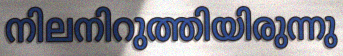
നിലനിറുത്തിയിരുന്നു